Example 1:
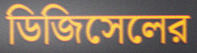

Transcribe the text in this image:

ডিজিসেলের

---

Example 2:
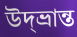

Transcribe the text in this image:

উদ্‌ভ্রান্ত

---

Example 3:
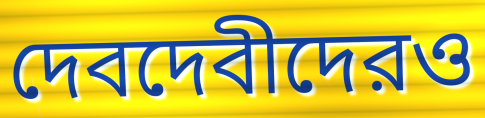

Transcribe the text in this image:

দেবদেবীদেরও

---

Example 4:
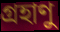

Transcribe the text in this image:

গ্রহাণু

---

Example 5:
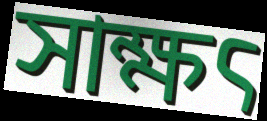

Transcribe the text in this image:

সাক্ষৎ